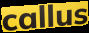
callus